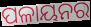
ପଳାୟନର